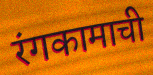
रंगकामाची